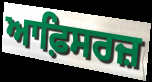
ਆਫ਼ਿਸਰਜ਼